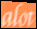
alot